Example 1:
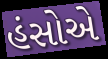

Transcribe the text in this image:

હંસોએ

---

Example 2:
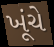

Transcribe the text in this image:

ખૂંચે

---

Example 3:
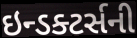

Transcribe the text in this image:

ઇન્ડક્ટર્સની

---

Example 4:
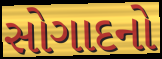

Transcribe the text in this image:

સોગાદનો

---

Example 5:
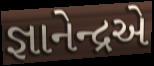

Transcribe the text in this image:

જ્ઞાનેન્દ્રએ